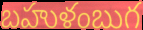
బహుళంబుగ